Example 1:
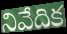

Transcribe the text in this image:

నివేదిక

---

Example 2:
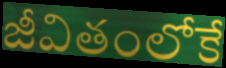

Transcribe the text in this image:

జీవితంలోకే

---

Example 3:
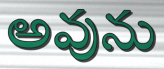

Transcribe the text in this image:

అవును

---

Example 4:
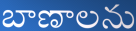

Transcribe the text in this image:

బాణాలను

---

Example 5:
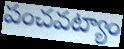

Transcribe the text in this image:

పంచవట్యాం